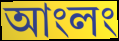
আংলং